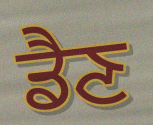
ਡੈਣ